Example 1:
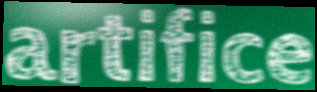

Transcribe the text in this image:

artifice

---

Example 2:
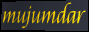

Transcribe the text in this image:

mujumdar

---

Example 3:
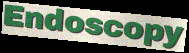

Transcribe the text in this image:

Endoscopy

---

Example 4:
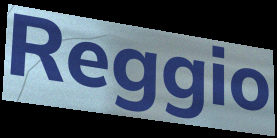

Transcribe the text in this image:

Reggio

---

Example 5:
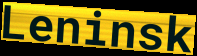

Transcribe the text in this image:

Leninsk